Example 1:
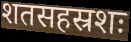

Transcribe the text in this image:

शतसहस्रशः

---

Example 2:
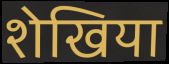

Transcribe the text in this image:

शेखिया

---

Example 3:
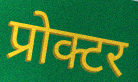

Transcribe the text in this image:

प्रोक्टर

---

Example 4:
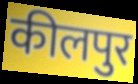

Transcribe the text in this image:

कीलपुर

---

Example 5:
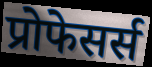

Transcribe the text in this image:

प्रोफेसर्स